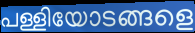
പള്ളിയോടങ്ങളെ